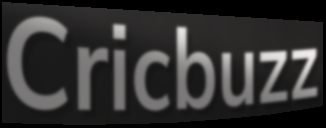
Cricbuzz